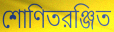
শোণিতরঞ্জিত